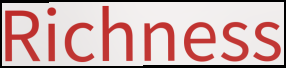
Richness